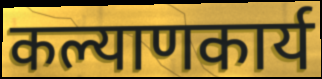
कल्याणकार्य